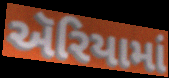
ઍરિયામાં